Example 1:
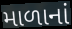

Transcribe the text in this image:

માળાનાં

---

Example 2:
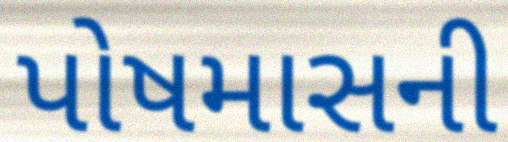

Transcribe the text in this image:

પોષમાસની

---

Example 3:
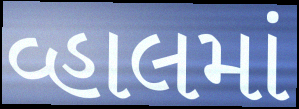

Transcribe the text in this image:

વ્હાલમાં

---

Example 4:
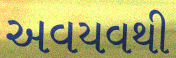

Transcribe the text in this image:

અવયવથી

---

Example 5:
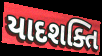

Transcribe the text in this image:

યાદશક્તિ